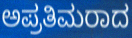
ಅಪ್ರತಿಮರಾದ